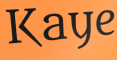
Kaye